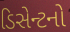
ડિસેન્ટનો